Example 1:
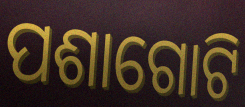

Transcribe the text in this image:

ପଶାଗୋଟି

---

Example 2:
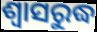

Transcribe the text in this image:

ଶ୍ବାସରୁଦ୍ଧ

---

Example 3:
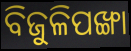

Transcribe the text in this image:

ବିଜୁଳିପଙ୍ଖା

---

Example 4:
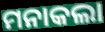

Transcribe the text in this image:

ମନାକଲା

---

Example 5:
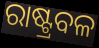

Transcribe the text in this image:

ରାଷ୍ଟ୍ରବଳ